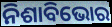
ନିଶାବିଭୋର